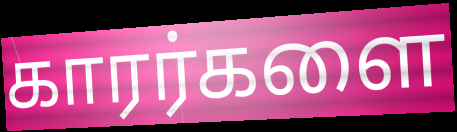
காரர்களை